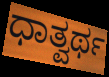
ಧಾತ್ವರ್ಥ